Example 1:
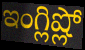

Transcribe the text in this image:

ఇంగ్లిష్లో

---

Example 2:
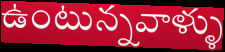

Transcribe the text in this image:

ఉంటున్నవాళ్ళు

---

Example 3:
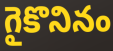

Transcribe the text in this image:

గైకొనినం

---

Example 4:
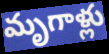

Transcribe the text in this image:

మృగాళ్లు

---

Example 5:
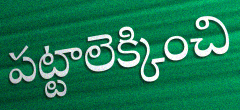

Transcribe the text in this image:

పట్టాలెక్కించి